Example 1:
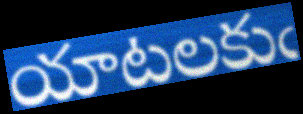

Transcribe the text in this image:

యాటలకుఁ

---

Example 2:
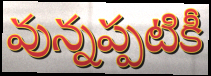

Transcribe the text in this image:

వున్నప్పటికీ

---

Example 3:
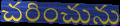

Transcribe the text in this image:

చరించును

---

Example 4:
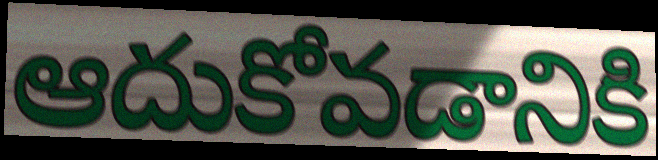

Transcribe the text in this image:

ఆదుకోవడానికి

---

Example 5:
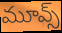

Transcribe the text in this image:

మూవ్స్